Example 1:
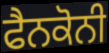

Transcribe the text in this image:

ਫੈਨਕੋਨੀ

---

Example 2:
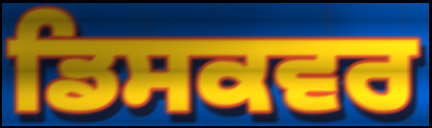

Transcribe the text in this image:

ਡਿਸਕਵਰ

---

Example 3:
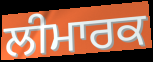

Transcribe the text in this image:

ਲੀਮਾਰਕ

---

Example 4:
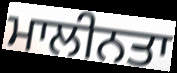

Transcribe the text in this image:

ਮਾਲੀਨਤਾ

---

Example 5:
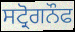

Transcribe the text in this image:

ਸਟ੍ਰੋਗਨੌਫ